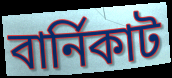
বার্নিকাট